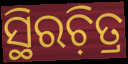
ସ୍ଥିରଚ଼ିତ୍ର